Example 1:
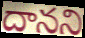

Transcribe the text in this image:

దానని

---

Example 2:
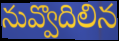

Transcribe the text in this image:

నువ్వొదిలిన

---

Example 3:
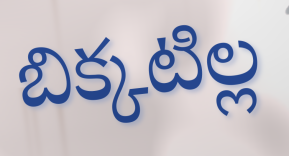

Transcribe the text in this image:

బిక్కటిల్ల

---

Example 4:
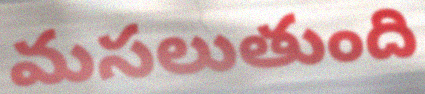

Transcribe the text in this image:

మసలుతుంది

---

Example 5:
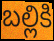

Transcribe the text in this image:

బల్లికి